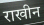
राखीन